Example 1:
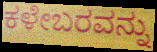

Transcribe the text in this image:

ಕಳೇಬರವನ್ನು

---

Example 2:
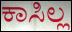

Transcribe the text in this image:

ಕಾಸಿಲ್ಲ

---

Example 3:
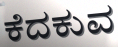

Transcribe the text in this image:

ಕೆದಕುವ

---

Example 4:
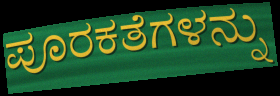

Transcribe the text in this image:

ಪೂರಕತೆಗಳನ್ನು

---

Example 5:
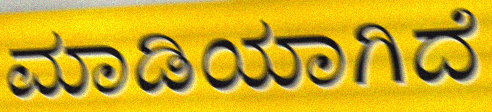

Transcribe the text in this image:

ಮಾಡಿಯಾಗಿದೆ